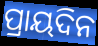
ପ୍ରାୟଦିନ